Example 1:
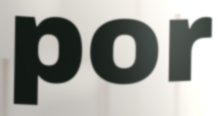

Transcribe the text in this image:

por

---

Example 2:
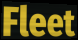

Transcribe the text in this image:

Fleet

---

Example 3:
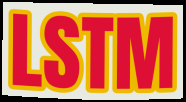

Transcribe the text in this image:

LSTM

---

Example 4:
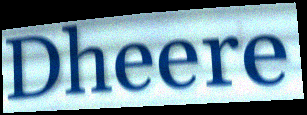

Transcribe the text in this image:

Dheere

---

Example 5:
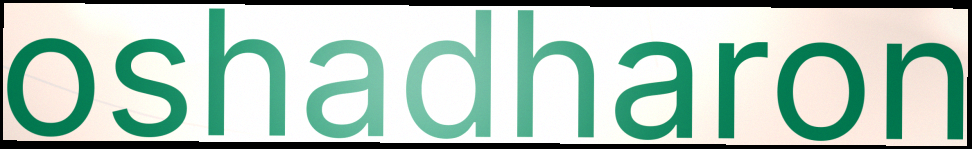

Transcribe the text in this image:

oshadharon